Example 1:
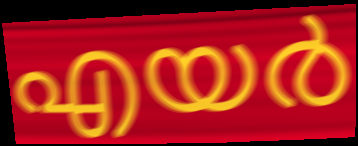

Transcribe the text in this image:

എയർ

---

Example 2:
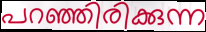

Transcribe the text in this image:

പറഞ്ഞിരിക്കുന്ന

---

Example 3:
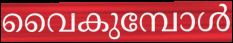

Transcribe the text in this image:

വൈകുമ്പോൾ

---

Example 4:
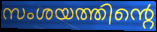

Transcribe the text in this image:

സംശയത്തിന്റെ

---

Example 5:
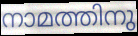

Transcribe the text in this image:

നാമത്തിനു